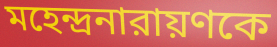
মহেন্দ্রনারায়ণকে